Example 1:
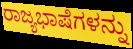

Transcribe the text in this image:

ರಾಜ್ಯಭಾಷೆಗಳನ್ನು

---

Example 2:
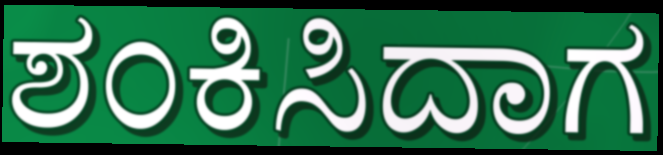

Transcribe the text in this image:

ಶಂಕಿಸಿದಾಗ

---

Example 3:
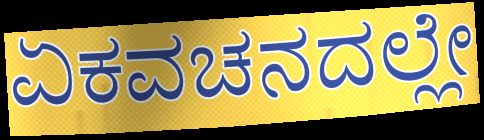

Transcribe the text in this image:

ಏಕವಚನದಲ್ಲೇ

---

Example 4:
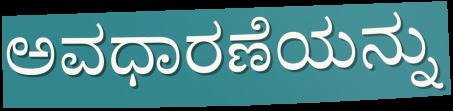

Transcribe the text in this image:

ಅವಧಾರಣೆಯನ್ನು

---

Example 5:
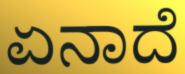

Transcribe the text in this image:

ಏನಾದೆ